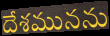
దేశమునను